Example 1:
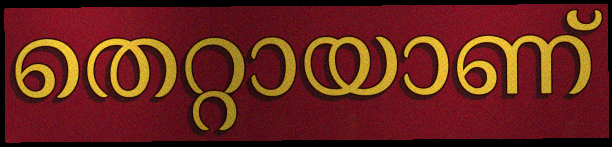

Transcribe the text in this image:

തെറ്റായാണ്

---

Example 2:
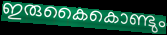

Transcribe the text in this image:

ഇരുകൈകൊണ്ടും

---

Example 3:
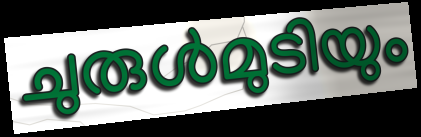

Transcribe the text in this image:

ചുരുൾമുടിയും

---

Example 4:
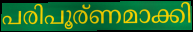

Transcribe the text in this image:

പരിപൂര്ണമാക്കി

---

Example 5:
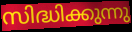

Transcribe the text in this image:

സിദ്ധിക്കുന്നു